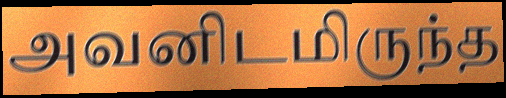
அவனிடமிருந்த